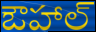
ఔహాల్